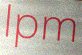
Ipm